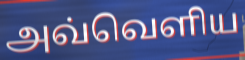
அவ்வெளிய